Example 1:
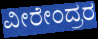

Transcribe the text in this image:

ವೀರೇಂದ್ರರ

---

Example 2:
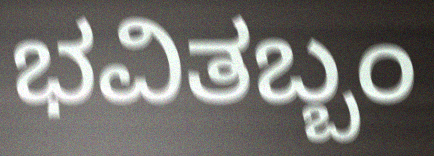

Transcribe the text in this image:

ಭವಿತಬ್ಬಂ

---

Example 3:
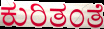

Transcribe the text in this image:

ಕುರಿತಂತೆ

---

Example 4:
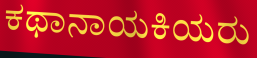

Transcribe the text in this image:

ಕಥಾನಾಯಕಿಯರು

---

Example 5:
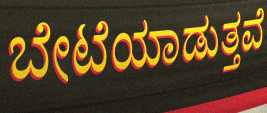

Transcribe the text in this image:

ಬೇಟೆಯಾಡುತ್ತವೆ